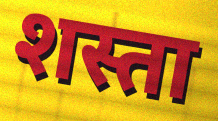
शस्ता